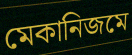
মেকানিজমে